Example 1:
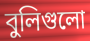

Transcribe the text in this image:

বুলিগুলো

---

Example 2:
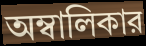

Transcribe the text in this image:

অম্বালিকার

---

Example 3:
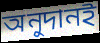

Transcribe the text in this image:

অনুদানই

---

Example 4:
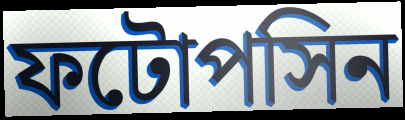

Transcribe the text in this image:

ফটোপসিন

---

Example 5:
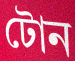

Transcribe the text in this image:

টোন